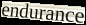
endurance